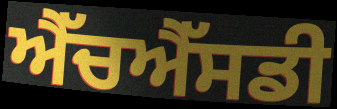
ਐੱਚਐੱਸਡੀ